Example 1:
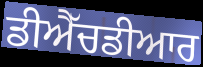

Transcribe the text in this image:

ਡੀਐੱਚਡੀਆਰ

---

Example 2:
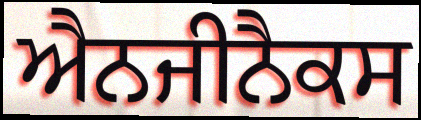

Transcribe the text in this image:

ਐਨਜੀਨੈਕਸ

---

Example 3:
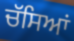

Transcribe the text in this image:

ਚੱਸਿਆਂ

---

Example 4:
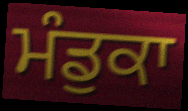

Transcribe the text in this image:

ਮੰਡੁਕਾ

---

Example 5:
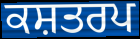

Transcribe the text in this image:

ਕਸ਼ਤਰਪ